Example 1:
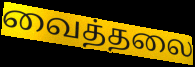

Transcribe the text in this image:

வைத்தலை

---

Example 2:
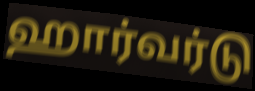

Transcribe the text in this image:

ஹார்வர்டு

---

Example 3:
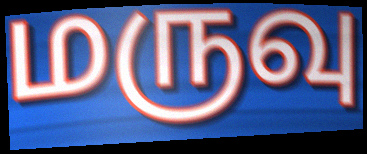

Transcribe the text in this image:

மருவு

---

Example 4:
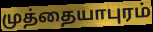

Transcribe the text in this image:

முத்தையாபுரம்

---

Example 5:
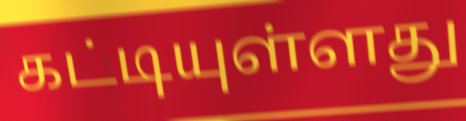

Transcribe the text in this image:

கட்டியுள்ளது